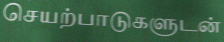
செயற்பாடுகளுடன்